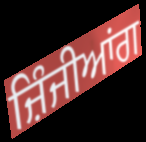
ਜ਼ਿੰਜੀਆਂਗ